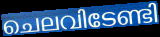
ചെലവിടേണ്ടി